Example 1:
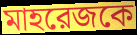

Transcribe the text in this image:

মাহরেজকে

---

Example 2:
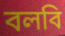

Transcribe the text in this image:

বলবি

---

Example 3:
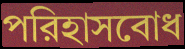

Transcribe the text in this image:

পরিহাসবোধ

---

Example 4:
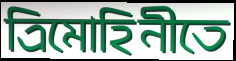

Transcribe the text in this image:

ত্রিমোহিনীতে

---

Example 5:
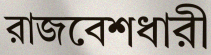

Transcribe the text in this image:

রাজবেশধারী